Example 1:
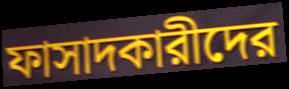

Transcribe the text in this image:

ফাসাদকারীদের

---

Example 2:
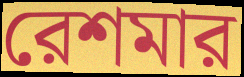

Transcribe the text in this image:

রেশমার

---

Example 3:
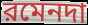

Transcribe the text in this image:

রমেনদা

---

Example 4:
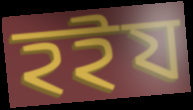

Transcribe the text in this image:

হইয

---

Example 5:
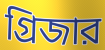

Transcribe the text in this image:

গ্রিজার